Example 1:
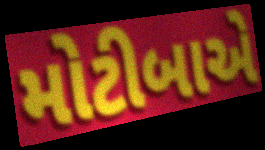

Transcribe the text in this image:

મોટીબાએ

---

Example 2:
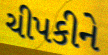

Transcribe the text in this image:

ચીપકીને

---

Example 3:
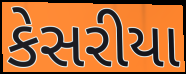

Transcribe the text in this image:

કેસરીયા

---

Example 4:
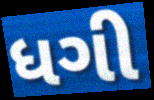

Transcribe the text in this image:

ધગી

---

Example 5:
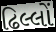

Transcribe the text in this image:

ઢિલ્લોં